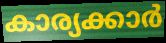
കാര്യക്കാർ